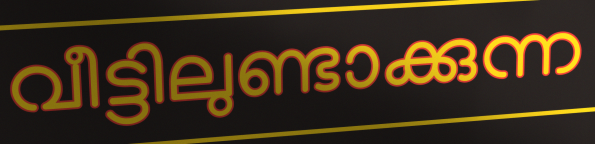
വീട്ടിലുണ്ടാക്കുന്ന